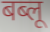
बब्लू